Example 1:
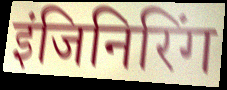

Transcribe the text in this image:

इंजिनिरिंग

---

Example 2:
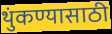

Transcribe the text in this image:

थुंकण्यासाठी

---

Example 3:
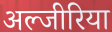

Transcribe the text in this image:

अल्जीरिया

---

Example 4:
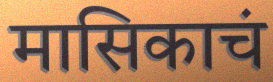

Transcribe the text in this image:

मासिकाचं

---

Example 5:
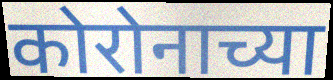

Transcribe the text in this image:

कोरोनाच्या